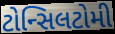
ટોન્સિલટોમી